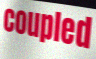
coupled